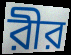
রীর